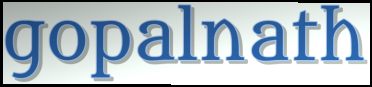
gopalnath